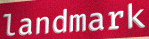
landmark